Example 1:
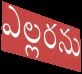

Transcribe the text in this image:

ఎల్లరను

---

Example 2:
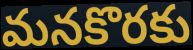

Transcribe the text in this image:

మనకొరకు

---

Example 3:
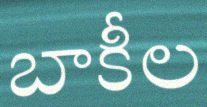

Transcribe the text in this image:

బాకీల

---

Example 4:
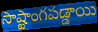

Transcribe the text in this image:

సాష్టాంగపడ్డాయి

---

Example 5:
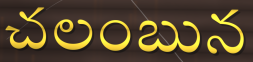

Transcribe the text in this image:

చలంబున